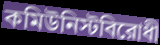
কমিউনিস্টবিরোধী